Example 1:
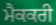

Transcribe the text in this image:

ਮੈਕਕਰੀ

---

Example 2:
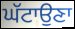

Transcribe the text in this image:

ਘੱਟਾਉਣਾ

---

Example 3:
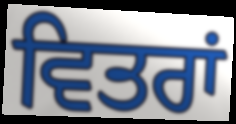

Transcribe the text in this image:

ਵਿਤਰਾਂ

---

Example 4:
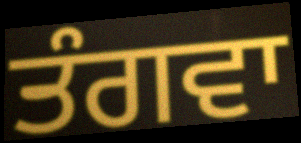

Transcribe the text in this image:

ਤੰਗਵਾ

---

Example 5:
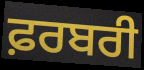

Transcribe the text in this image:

ਫ਼ਰਬਰੀ